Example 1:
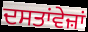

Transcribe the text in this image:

ਦਸਤਾਂਵੇਜ਼ਾਂ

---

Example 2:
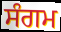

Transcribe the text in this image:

ਸੰਗਮ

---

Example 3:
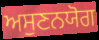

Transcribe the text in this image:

ਅਸੁਣਨਯੋਗ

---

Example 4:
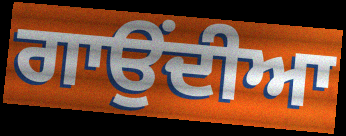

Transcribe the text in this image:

ਗਾਉਂਦੀਆ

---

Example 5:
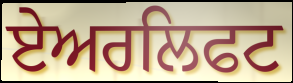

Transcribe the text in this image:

ਏਅਰਲਿਫਟ